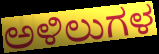
ಅಳಿಲುಗಳ